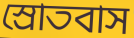
স্রোতবাস